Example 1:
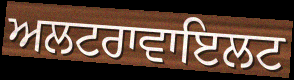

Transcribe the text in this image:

ਅਲਟਰਾਵਾਇਲਟ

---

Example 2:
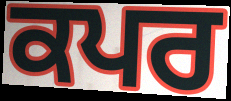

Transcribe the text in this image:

ਕਪਰ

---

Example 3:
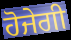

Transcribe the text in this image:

ਹੋਜੇਗੀ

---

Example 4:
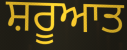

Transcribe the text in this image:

ਸ਼ਰੂਆਤ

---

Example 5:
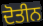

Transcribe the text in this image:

ਦੋਤੀਨ